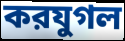
করযুগল